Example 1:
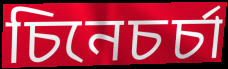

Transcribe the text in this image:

চিনেচৰ্চা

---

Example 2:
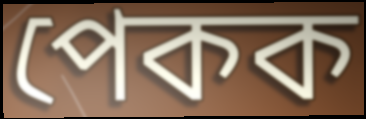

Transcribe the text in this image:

পেকক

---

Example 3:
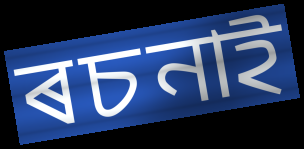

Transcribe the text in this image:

ৰচনাই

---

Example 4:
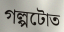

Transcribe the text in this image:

গল্পটোত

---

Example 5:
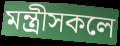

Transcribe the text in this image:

মন্ত্ৰীসকলে